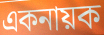
একনায়ক